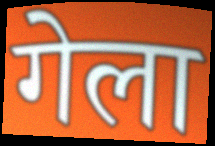
गेला